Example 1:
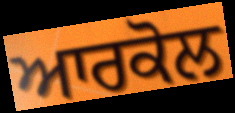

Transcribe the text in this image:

ਆਰਕੋਲ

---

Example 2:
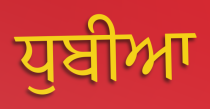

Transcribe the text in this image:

ਧੁਬੀਆ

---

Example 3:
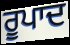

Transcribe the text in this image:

ਰੂਪਾਦ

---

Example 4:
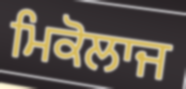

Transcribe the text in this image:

ਮਿਕੋਲਾਜ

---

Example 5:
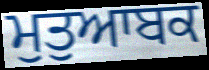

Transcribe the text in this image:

ਮੁਤੁਆਬਕ